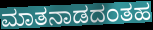
ಮಾತನಾಡದಂತಹ